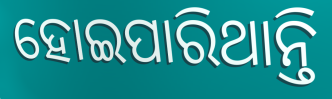
ହୋଇପାରିଥାନ୍ତି